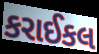
કરાઈકલ